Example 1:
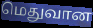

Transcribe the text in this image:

மெதுவான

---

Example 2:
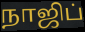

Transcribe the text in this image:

நாஜிப்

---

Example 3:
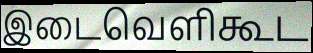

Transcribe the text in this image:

இடைவெளிகூட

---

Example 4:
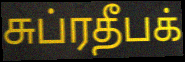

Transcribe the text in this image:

சுப்ரதீபக்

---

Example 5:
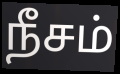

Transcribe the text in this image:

நீசம்